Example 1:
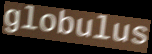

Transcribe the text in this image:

globulus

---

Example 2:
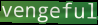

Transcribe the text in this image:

vengeful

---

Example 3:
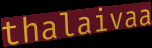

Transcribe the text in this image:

thalaivaa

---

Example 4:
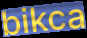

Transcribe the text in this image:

bikca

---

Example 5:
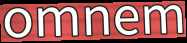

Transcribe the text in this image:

omnem